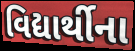
વિદ્યાર્થીના